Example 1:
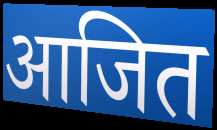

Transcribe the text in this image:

आजित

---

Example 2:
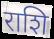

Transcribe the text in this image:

राशि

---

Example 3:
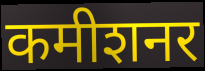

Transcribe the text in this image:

कमीशनर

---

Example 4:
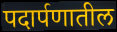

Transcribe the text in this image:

पदार्पणातील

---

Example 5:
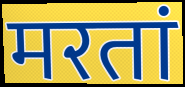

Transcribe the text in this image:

मरतां